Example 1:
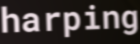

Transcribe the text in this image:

harping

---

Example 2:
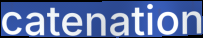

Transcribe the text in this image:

catenation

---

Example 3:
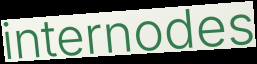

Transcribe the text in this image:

internodes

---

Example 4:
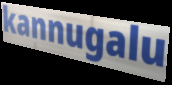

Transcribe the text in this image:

kannugalu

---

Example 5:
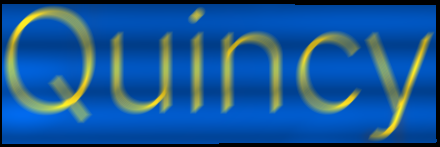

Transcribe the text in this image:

Quincy